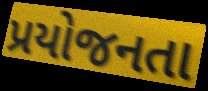
પ્રયોજનતા